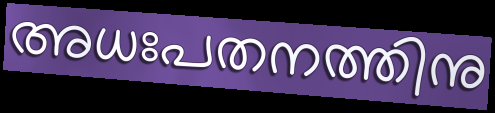
അധഃപതനത്തിനു